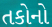
તકોનો